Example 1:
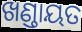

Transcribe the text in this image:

ଖଣ୍ଡାୟତ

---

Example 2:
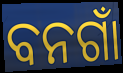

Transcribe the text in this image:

ବନଗାଁ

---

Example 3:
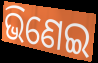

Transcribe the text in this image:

ଭିଣେଇ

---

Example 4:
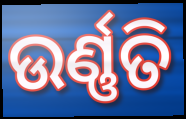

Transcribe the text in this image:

ଉର୍ଣ୍ଣତି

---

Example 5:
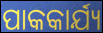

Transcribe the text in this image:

ପାକକାର୍ଯ୍ୟ